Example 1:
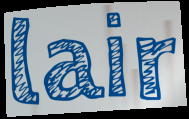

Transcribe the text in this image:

lair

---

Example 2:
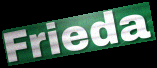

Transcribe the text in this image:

Frieda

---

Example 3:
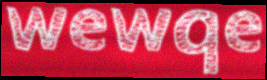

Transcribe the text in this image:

wewqe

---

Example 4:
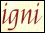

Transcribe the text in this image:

igni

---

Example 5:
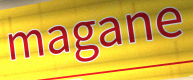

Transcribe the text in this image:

magane